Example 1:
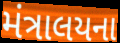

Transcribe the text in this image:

મંત્રાલયના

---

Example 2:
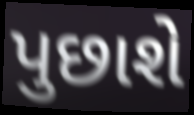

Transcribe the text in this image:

પુછાશે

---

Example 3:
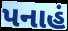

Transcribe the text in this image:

પનાહં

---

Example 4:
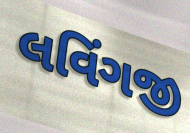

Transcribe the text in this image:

લવિંગજી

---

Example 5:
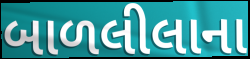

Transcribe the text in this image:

બાળલીલાના